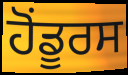
ਹੋਂਡੂਰਸ